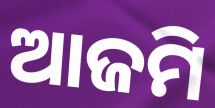
ଆଜମି